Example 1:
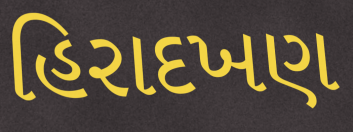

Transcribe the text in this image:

હિરાદખણ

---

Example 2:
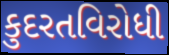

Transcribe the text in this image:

કુદરતવિરોધી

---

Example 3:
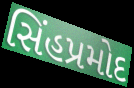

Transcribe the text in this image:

સિંહપ્રમોદ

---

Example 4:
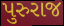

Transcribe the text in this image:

પુરુરાજ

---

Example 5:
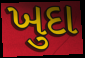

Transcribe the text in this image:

ખુદા